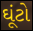
ઘૂંટો